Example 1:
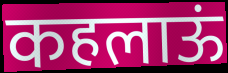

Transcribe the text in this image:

कहलाऊं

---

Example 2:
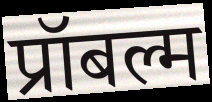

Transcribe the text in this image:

प्रॉबल्म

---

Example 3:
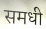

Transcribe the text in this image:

समधी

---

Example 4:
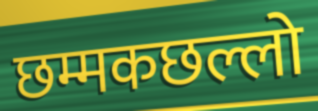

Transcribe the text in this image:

छम्मकछल्लो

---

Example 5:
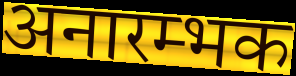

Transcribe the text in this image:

अनारम्भक